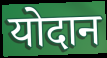
योदान